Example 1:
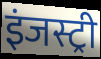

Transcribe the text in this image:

इंजस्ट्री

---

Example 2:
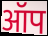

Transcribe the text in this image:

ऑप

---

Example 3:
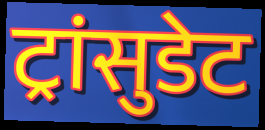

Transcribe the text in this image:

ट्रांसुडेट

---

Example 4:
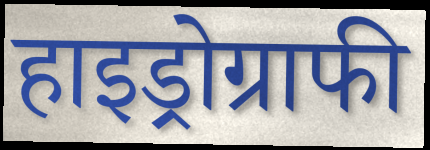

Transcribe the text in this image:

हाइड्रोग्राफी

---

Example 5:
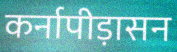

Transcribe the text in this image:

कर्नापीड़ासन